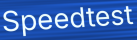
Speedtest